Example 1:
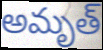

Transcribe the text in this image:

అమృత్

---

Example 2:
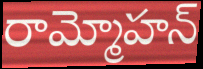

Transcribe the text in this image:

రామ్మోహన్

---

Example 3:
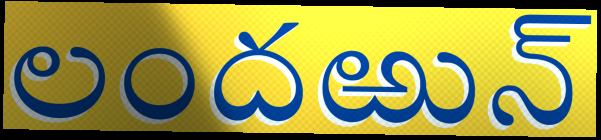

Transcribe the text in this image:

లందఱున్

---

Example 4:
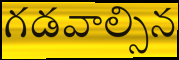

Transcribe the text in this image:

గడవాల్సిన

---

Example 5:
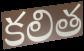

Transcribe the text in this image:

కలిత